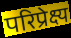
परिप्रेक्ष्य